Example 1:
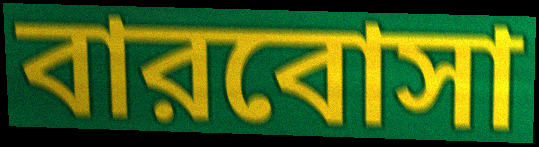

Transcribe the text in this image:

বারবোসা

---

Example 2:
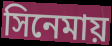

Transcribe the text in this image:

সিনেমায়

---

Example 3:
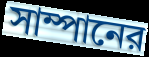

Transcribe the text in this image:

সাম্পানের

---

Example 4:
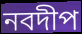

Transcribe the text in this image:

নবদীপ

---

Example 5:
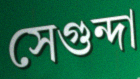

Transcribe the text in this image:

সেগুন্দা